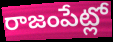
రాజంపేట్లో